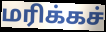
மரிக்கச்